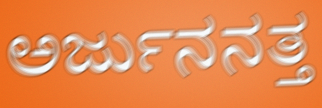
ಅರ್ಜುನನತ್ತ